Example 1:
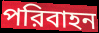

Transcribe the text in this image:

পরিবাহন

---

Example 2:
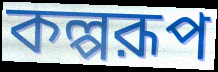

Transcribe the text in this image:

কল্পরূপ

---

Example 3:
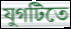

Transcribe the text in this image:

যুগটিতে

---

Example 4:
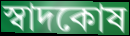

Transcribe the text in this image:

স্বাদকোষ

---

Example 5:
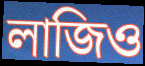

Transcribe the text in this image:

লাজিও